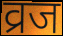
व्रज